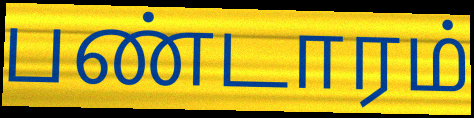
பண்டாரம்